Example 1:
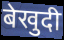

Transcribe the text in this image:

बेखुदी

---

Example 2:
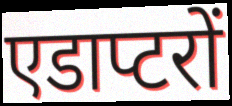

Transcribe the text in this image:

एडाप्टरों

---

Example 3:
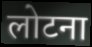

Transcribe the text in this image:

लोटना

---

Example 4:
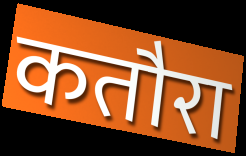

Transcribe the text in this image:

कतौरा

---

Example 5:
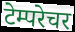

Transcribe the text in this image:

टेम्परेचर